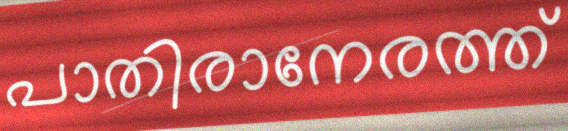
പാതിരാനേരത്ത്